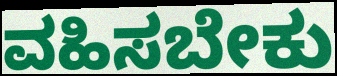
ವಹಿಸಬೇಕು